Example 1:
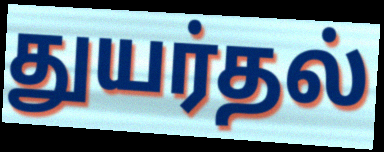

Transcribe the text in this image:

துயர்தல்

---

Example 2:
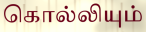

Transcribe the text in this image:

கொல்லியும்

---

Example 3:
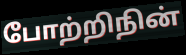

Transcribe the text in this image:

போற்றிநின்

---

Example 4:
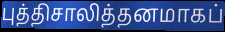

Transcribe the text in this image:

புத்திசாலித்தனமாகப்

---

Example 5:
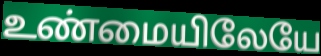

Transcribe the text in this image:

உண்மையிலேயே